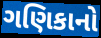
ગણિકાનો